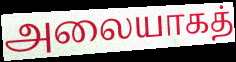
அலையாகத்